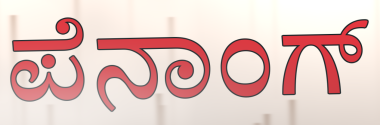
ಪೆನಾಂಗ್